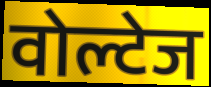
वोल्टेज